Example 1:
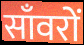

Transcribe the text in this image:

साँवरों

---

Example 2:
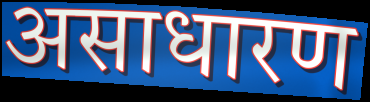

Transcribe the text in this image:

असाधारण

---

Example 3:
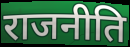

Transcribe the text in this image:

राजनीति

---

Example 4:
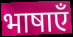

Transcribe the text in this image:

भाषाएँ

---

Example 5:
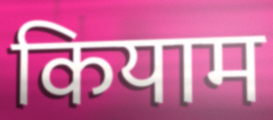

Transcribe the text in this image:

कियाम